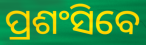
ପ୍ରଶଂସିବେ